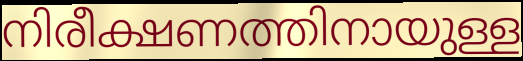
നിരീക്ഷണത്തിനായുള്ള